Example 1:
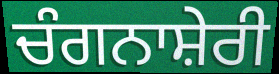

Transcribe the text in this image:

ਚੰਗਨਾਸ਼ੇਰੀ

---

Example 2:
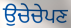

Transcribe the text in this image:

ਉਚੇਚੇਪਣ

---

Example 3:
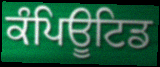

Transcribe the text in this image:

ਕੰਪਿਊਟਿਡ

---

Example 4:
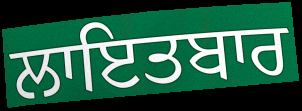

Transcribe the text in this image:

ਲਾਇਤਬਾਰ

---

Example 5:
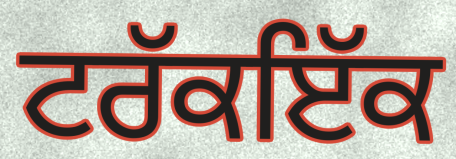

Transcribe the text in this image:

ਟਰੱਕਇੱਕ